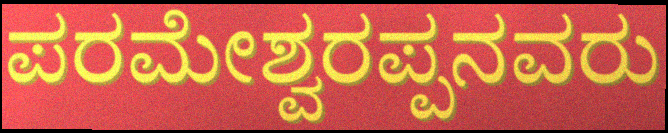
ಪರಮೇಶ್ವರಪ್ಪನವರು